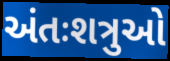
અંતઃશત્રુઓ